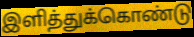
இளித்துக்கொண்டு